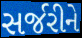
સર્જરીને